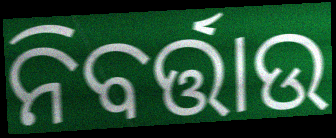
ନିବର୍ତ୍ତାଉ